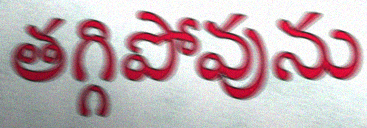
తగ్గిపోవును